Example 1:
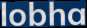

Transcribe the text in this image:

lobha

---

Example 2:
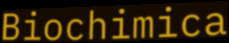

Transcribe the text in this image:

Biochimica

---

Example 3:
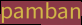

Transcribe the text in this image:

pamban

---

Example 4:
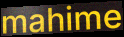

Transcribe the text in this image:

mahime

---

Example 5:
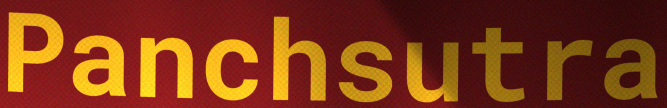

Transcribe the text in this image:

Panchsutra